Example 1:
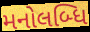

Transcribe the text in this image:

મનોલબ્ધિ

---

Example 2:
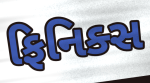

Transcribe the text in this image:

ફિનિક્સ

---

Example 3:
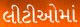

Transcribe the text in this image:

લીટીઓમાં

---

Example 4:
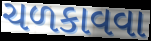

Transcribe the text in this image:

ચળકાવવા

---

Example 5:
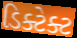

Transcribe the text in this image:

ડિક્ટેક્ટ